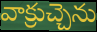
వాక్రుచ్చెను